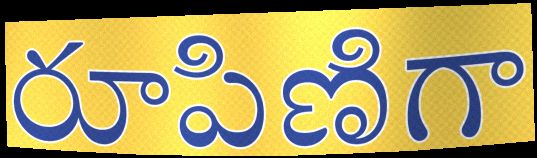
రూపిణిగా